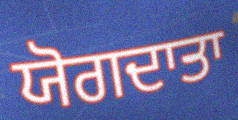
ਯੋਗਦਾਤਾ